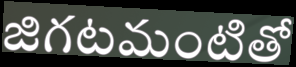
జిగటమంటితో